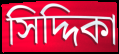
সিদ্দিকা